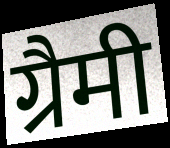
ग्रैमी